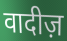
वादीज़